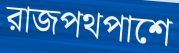
রাজপথপাশে